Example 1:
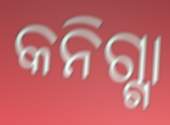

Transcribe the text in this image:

କନିଗ୍ଗା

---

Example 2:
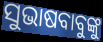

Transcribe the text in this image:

ସୁଭାଷବାବୁଙ୍କୁ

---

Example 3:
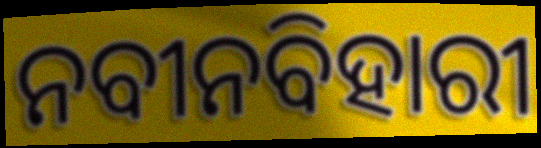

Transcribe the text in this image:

ନବୀନବିହାରୀ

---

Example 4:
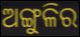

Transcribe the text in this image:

ଅଙ୍ଗୁଳିର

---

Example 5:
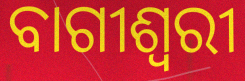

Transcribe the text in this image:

ବାଗୀଶ୍ୱରୀ